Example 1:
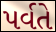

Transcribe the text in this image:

પર્વતે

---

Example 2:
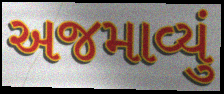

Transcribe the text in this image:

અજમાવ્યું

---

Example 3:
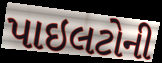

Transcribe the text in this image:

પાઇલટોની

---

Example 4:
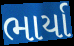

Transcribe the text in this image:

ભાર્યા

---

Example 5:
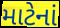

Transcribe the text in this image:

માટેનાં